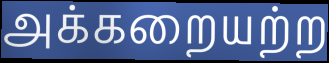
அக்கறையற்ற